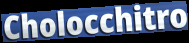
Cholocchitro